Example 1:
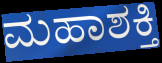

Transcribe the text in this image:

ಮಹಾಶಕ್ತಿ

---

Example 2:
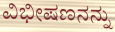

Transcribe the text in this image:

ವಿಭೀಷಣನನ್ನು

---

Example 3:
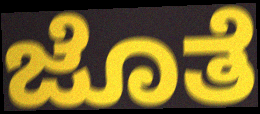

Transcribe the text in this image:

ಜೊತೆ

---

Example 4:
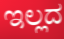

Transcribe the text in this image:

ಇಲ್ಲದ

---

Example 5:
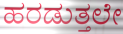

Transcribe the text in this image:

ಹರಡುತ್ತಲೇ